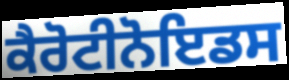
ਕੈਰੋਟੀਨੋਇਡਸ